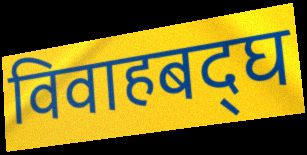
विवाहबद्घ